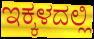
ಇಕ್ಕಳದಲ್ಲಿ